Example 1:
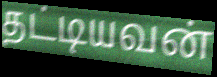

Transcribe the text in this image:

தட்டியவன்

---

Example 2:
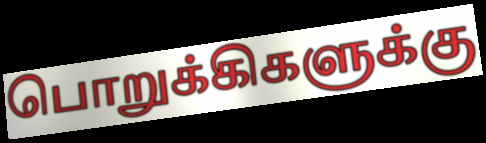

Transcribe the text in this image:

பொறுக்கிகளுக்கு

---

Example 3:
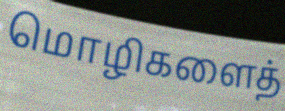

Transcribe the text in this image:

மொழிகளைத்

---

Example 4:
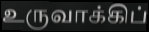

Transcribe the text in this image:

உருவாக்கிப்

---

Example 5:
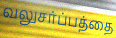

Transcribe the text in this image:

வலுசர்ப்பத்தை